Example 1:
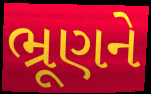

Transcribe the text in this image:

ભ્રૂણને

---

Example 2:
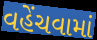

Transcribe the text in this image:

વહેંચવામાં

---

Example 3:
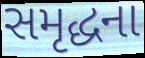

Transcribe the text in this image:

સમૃદ્ધના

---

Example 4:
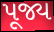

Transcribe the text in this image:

પૂજ્ય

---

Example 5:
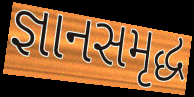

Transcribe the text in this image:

જ્ઞાનસમૃદ્ધ